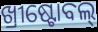
ଖ୍ରୀଷ୍ଟୋବଲ୍